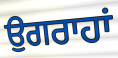
ਉਗਰਾਹਾਂ